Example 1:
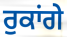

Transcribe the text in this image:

ਰੁਕਾਂਗੇ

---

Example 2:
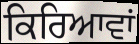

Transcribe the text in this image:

ਕਿਰਿਆਵਾਂ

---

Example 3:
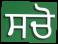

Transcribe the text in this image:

ਸਚੋ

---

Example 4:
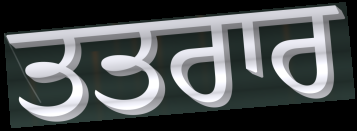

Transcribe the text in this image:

ਤਤਰਾਰ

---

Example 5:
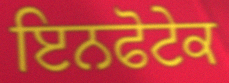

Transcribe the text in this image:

ਇਨਫੋਟੇਕ